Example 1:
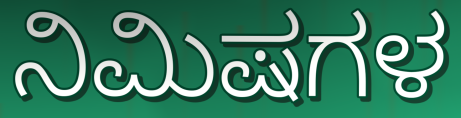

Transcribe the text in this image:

ನಿಮಿಷಗಳ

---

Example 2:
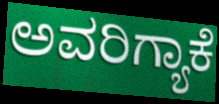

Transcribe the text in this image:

ಅವರಿಗ್ಯಾಕೆ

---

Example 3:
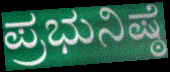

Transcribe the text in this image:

ಪ್ರಭುನಿಷ್ಠೆ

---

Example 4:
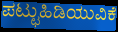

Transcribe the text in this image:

ಪಟ್ಟುಹಿಡಿಯುವಿಕೆ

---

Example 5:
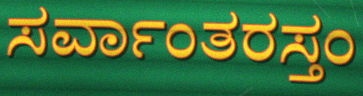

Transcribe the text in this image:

ಸರ್ವಾಂತರಸ್ತಂ